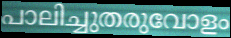
പാലിച്ചുതരുവോളം